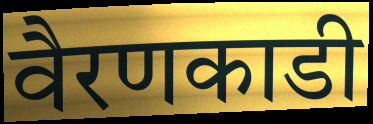
वैरणकाडी